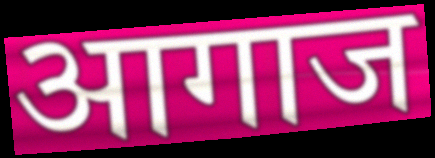
आगाज